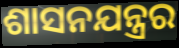
ଶାସନଯନ୍ତ୍ରର